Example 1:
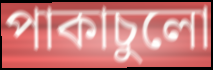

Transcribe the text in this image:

পাকাচুলো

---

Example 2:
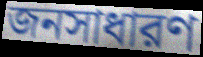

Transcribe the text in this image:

জনসাধারণ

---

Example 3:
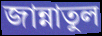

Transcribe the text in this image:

জান্নাতুল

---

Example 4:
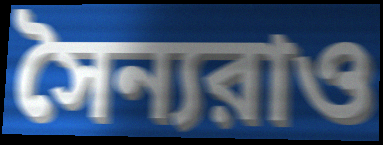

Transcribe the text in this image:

সৈন্যরাও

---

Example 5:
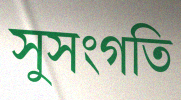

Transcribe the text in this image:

সুসংগতি